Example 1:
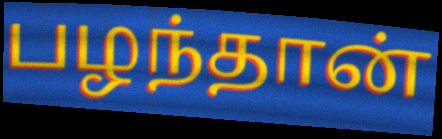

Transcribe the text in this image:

பழந்தான்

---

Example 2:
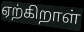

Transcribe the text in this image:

ஏற்கிறாள்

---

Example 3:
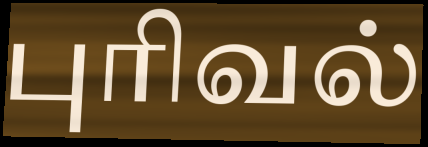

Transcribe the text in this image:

புரிவல்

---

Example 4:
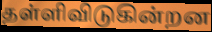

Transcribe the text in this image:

தள்ளிவிடுகின்றன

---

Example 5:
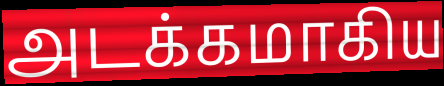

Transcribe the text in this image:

அடக்கமாகிய